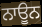
ਨਾਊਨ